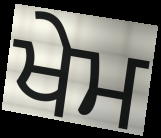
ਖੇਮ